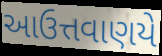
આઉત્તવાણયે